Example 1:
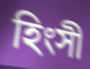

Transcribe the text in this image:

হিংসী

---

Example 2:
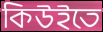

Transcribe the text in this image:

কিউইতে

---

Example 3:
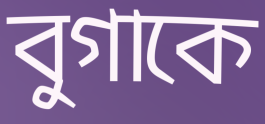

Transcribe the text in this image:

বুগাকে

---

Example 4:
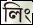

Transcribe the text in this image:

লিং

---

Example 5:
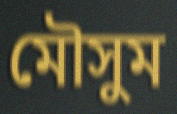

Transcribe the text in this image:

মৌসুম